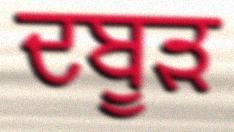
ਦਬੂੜ